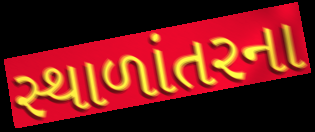
સ્થાળાંતરના